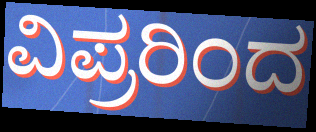
ವಿಪ್ರರಿಂದ